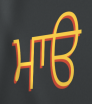
ਮਾੳ